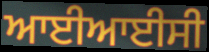
ਆਈਆਈਸੀ